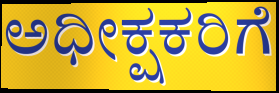
ಅಧೀಕ್ಷಕರಿಗೆ